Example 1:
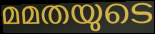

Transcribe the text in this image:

മമതയുടെ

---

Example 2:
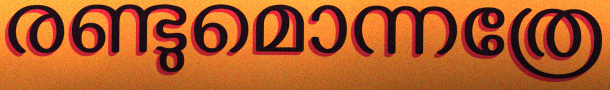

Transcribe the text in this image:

രണ്ടുമൊന്നത്രേ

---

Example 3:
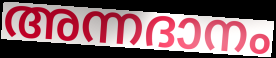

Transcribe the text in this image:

അന്നദാനം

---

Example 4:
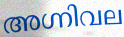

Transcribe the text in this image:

അഗ്നിവല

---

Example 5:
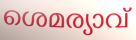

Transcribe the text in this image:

ശെമര്യാവ്